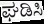
ಘಡಿಸಿ